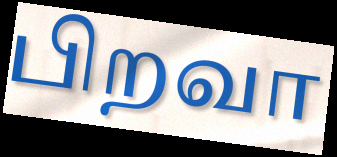
பிறவா